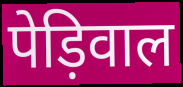
पेड़िवाल